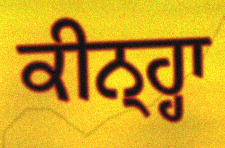
ਕੀਨ੍ਹ੍ਹਾ